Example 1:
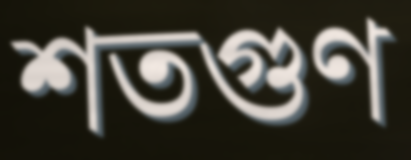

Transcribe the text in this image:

শতগুণ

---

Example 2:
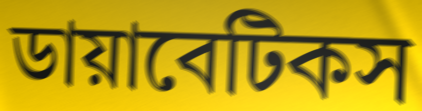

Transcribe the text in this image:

ডায়াবেটিকস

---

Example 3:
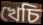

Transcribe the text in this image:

খেচি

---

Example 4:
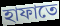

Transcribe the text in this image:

হাফাতে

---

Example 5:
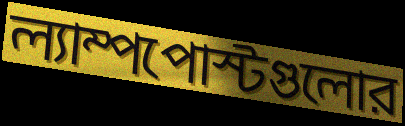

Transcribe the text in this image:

ল্যাম্পপোস্টগুলোর